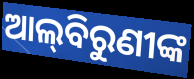
ଆଲ୍‌ବିରୁଣୀଙ୍କ